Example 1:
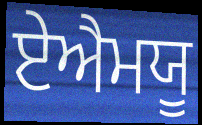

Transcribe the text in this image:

ਏਐਮਯੂ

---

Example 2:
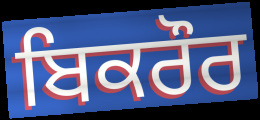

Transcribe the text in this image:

ਬਿਕਰੌਰ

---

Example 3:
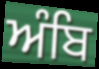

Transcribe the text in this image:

ਅੰਬਿ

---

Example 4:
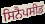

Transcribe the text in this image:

ਸਿਨੈਪਸੀਡ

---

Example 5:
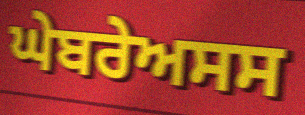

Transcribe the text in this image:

ਘੇਬਰੇਅਸਸ